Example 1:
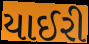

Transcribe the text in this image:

યાઈરી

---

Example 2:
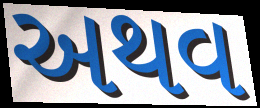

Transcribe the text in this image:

અથવ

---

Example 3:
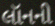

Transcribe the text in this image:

લૉનની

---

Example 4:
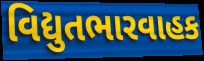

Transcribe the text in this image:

વિદ્યુતભારવાહક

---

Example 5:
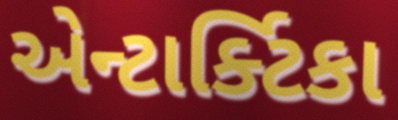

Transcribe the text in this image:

એન્ટાર્ક્ટિકા